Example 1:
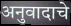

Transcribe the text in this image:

अनुवादाचे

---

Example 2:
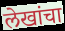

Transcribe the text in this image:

लेखांचा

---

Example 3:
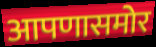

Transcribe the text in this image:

आपणासमोर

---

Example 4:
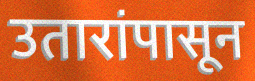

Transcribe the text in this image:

उतारांपासून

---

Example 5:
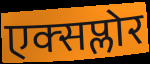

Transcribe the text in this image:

एक्‍सप्लोर